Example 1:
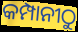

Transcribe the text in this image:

କମ୍ପାନୀଠୁ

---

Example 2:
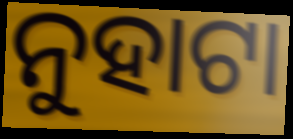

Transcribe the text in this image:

ନୁହାଟା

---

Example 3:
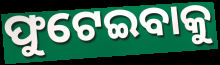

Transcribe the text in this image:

ଫୁଟେଇବାକୁ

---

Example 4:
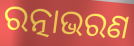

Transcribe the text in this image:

ରତ୍ନାଭରଣ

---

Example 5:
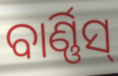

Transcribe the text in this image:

ବାର୍ଣ୍ଣିସ୍